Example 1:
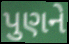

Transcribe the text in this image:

પુણને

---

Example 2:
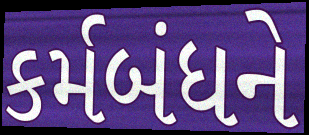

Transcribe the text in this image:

કર્મબંધને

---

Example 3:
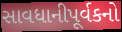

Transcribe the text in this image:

સાવધાનીપૂર્વકનો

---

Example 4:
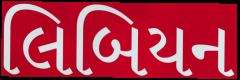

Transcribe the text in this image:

લિબિયન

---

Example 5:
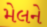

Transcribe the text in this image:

મેલને